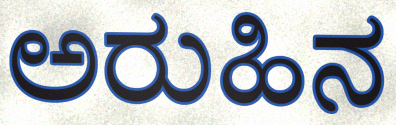
ಅರುಹಿನ